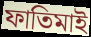
ফাতিমাই